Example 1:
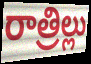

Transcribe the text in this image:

రాత్రిల్లు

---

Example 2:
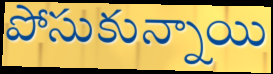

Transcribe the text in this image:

పోసుకున్నాయి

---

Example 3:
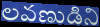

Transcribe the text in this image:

లవణుడిని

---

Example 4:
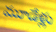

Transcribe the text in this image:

మూడేళ్లు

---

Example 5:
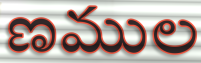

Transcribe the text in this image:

ణముల